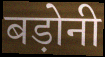
बड़ोनी